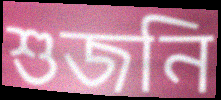
শুজনি